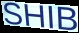
SHIB